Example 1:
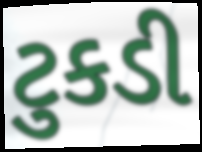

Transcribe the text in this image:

ટુકડી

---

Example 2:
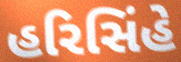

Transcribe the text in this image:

હરિસિંહે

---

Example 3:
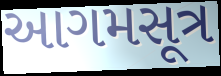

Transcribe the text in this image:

આગમસૂત્ર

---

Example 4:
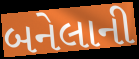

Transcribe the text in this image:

બનેલાની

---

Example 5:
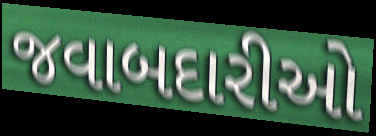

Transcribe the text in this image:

જવાબદારીઓ